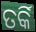
ତର୍କି